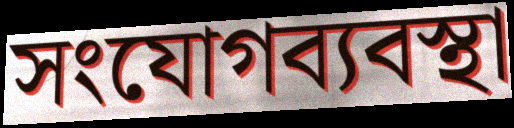
সংযোগব্যবস্থা